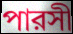
পারসী